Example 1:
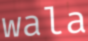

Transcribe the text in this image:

wala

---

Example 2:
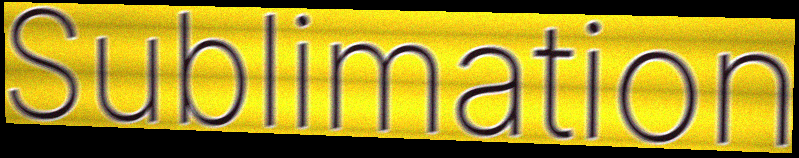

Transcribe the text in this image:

Sublimation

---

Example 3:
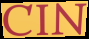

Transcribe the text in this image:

CIN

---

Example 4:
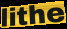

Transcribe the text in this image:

lithe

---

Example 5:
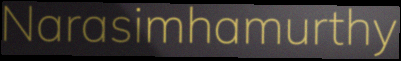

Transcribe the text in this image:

Narasimhamurthy